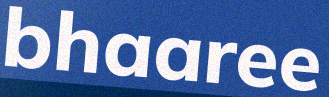
bhaaree